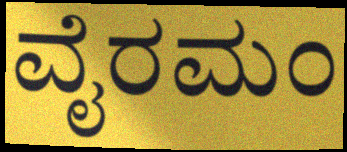
ವೈರಮಂ